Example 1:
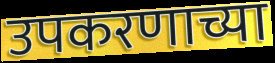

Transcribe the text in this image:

उपकरणाच्या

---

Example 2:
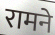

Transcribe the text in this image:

रामने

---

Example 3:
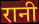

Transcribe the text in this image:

रानी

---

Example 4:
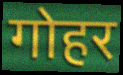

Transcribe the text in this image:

गोहर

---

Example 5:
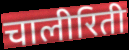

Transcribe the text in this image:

चालीरिती